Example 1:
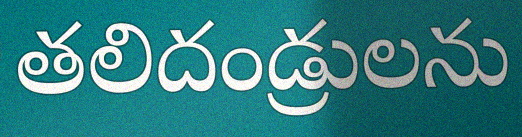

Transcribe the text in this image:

తలిదండ్రులను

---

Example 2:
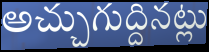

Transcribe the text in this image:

అచ్చుగుద్దినట్లు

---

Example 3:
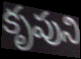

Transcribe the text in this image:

కృపుని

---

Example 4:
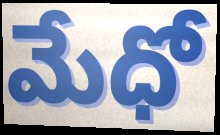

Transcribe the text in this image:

మేధో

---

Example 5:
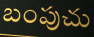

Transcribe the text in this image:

బంపుచు